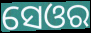
ସେଓର